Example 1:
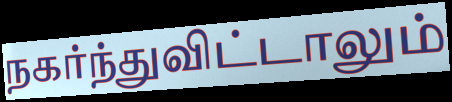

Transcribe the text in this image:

நகர்ந்துவிட்டாலும்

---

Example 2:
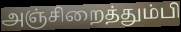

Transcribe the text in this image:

அஞ்சிறைத்தும்பி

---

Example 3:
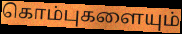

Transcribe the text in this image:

கொம்புகளையும்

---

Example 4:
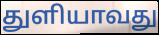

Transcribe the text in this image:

துளியாவது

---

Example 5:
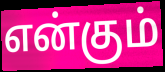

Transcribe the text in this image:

என்கும்